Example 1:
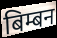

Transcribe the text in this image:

बिम्बन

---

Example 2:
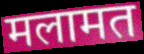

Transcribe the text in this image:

मलामत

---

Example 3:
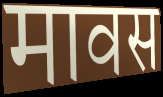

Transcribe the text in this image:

मावस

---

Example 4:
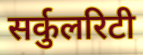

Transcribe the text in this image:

सर्कुलरिटी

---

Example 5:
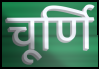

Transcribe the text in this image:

चूर्णि